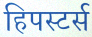
हिपस्टर्स